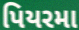
પિયરમા